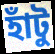
হাঁটু